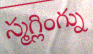
స్మగ్లింగ్ను